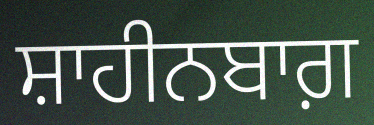
ਸ਼ਾਹੀਨਬਾਗ਼